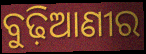
ବୁଢ଼ିଆଣୀର